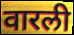
वारली